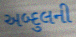
અબ્દુલની